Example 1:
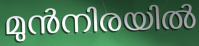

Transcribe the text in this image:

മുൻനിരയിൽ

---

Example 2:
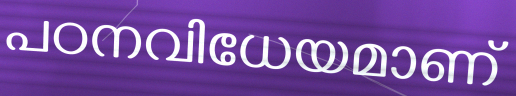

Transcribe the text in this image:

പഠനവിധേയമാണ്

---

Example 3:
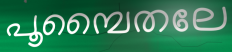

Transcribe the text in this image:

പൂമ്പൈതലേ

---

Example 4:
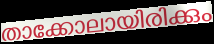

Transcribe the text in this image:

താക്കോലായിരിക്കും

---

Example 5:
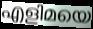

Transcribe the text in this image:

എളിമയെ